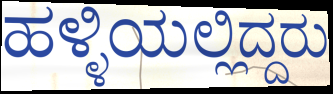
ಹಳ್ಳಿಯಲ್ಲಿದ್ದರು